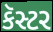
કૅસ્ટર